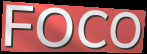
FOCO